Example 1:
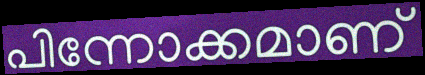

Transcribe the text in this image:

പിന്നോക്കമാണ്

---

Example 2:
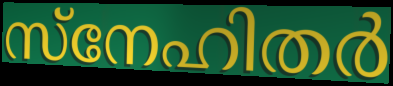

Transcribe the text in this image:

സ്നേഹിതർ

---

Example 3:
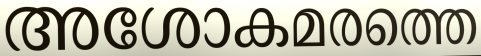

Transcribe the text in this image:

അശോകമരത്തെ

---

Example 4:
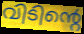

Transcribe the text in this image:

വിടിന്റെ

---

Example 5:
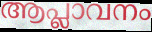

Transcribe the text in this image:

ആപ്ലാവനം